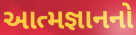
આત્મજ્ઞાનનો